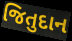
જિતુદાન